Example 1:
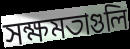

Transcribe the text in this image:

সক্ষমতাগুলি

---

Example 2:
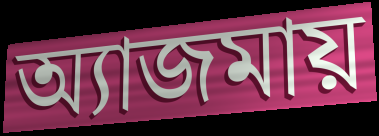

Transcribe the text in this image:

অ্যাজমায়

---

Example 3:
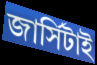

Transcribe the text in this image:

জার্সিটাই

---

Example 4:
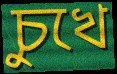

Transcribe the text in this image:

চুখে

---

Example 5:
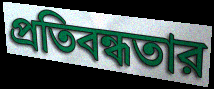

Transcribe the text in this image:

প্রতিবন্ধতার